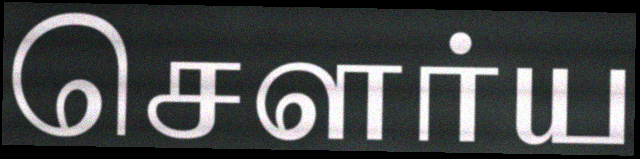
சௌர்ய